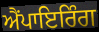
ਐਂਪਾਇਰਿੰਗ